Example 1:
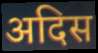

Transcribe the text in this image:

अदिस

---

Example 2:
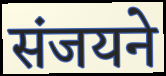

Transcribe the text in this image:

संजयने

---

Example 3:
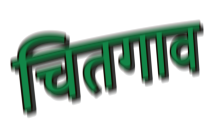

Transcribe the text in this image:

चितगाव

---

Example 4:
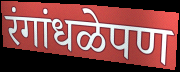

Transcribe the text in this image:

रंगांधळेपण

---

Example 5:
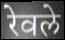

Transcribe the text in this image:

रेवले